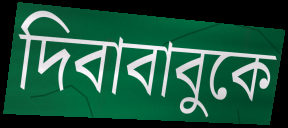
দিবাবাবুকে